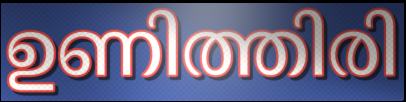
ഉണിത്തിരി